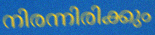
നിരന്നിരിക്കും